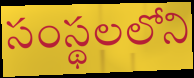
సంస్థలలోని